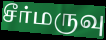
சீர்மருவு